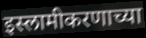
इस्लामीकरणाच्या